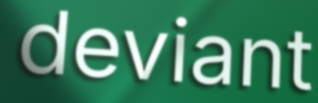
deviant